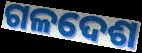
ଗଳଦେଶ